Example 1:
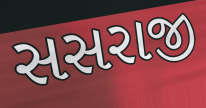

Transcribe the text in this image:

સસરાજી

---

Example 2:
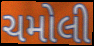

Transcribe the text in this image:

ચમોલી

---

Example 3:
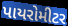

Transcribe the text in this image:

પાયરોમીટર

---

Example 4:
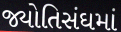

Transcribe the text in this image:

જ્યોતિસંઘમાં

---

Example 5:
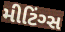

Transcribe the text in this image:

મીટિંગ્સ